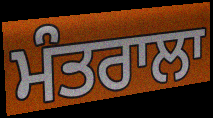
ਮੰਤਰਾਲਾ